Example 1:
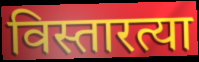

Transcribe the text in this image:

विस्तारत्या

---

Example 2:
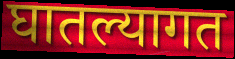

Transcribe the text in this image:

घातल्यागत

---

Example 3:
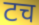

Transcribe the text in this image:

टच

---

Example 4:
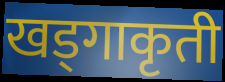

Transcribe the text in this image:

खड्गाकृती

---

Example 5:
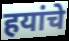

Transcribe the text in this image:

हयांचे